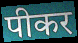
पीकर